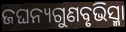
ଜଘନ୍ୟଗୁଣବୃଭିସ୍ମା